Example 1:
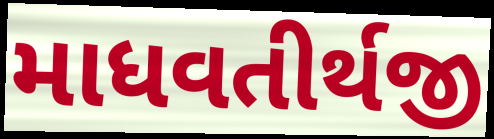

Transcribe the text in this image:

માધવતીર્થજી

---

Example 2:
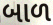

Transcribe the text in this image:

બાળ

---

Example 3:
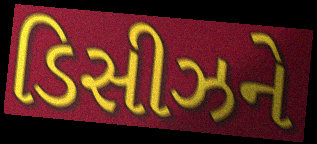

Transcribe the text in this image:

ડિસીઝને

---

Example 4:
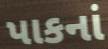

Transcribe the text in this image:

પાકનાં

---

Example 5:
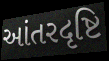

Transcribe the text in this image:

આંતરદૃષ્ટિ